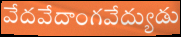
వేదవేదాంగవేద్యుడు